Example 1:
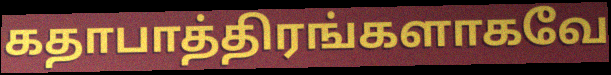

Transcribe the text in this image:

கதாபாத்திரங்களாகவே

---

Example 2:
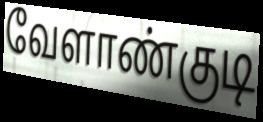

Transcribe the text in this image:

வேளாண்குடி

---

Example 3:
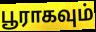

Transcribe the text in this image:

பூராகவும்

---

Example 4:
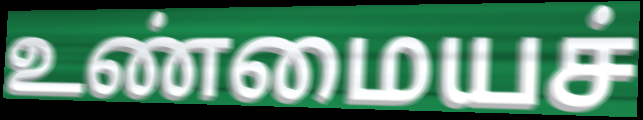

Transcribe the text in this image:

உண்மையச்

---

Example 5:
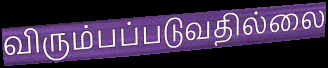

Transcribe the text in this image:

விரும்பப்படுவதில்லை